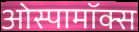
ओस्पामॉक्स